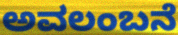
ಅವಲಂಬನೆ